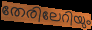
തേരിലേറിയും